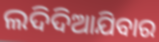
ଲଦିଦିଆଯିବାର